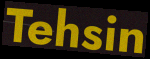
Tehsin